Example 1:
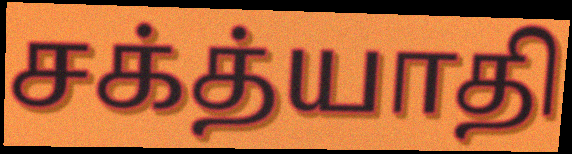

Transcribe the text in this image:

சக்த்யாதி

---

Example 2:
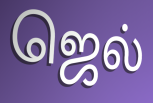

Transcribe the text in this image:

ஜெல்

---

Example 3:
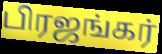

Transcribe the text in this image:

பிரஜங்கர்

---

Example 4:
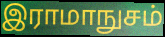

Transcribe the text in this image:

இராமாநுசம்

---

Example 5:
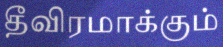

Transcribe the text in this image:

தீவிரமாக்கும்